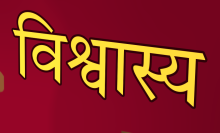
विश्वास्य